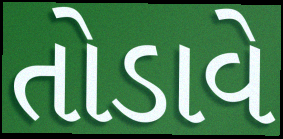
તોડાવે